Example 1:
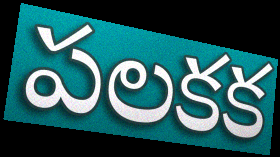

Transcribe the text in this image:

పలకక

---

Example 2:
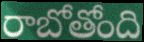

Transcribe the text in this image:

రాబోతోంది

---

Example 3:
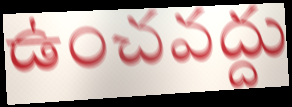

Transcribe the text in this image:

ఉంచవద్దు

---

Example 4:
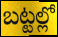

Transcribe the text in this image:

బట్టల్లో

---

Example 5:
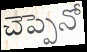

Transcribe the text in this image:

చెప్పెనో